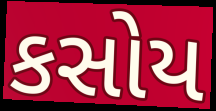
કસોય